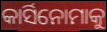
କାର୍ସିନୋମାକୁ